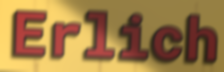
Erlich